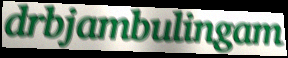
drbjambulingam